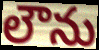
లౌను